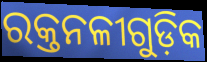
ରକ୍ତନଳୀଗୁଡ଼ିକ